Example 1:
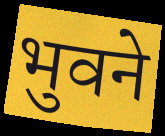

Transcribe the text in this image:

भुवने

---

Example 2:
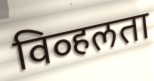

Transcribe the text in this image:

विव्हलता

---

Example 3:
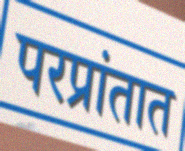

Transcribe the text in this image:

परप्रांतात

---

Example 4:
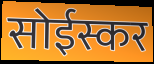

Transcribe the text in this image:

सोईस्कर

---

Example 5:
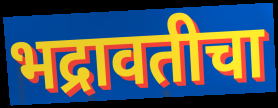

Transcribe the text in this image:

भद्रावतीचा